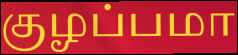
குழப்பமா